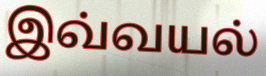
இவ்வயல்